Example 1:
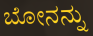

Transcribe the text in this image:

ಬೋನನ್ನು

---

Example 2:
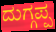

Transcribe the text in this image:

ದುಗ್ಗಪ್ಪ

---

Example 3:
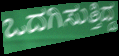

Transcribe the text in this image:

ಒದಗಿಸುತ್ತಿದ್ದ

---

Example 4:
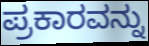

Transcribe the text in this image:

ಪ್ರಕಾರವನ್ನು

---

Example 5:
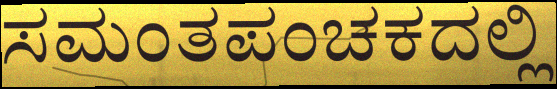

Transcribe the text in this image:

ಸಮಂತಪಂಚಕದಲ್ಲಿ